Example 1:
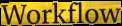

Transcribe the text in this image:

Workflow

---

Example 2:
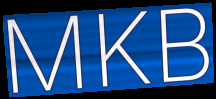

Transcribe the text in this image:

MKB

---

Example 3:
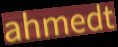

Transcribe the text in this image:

ahmedt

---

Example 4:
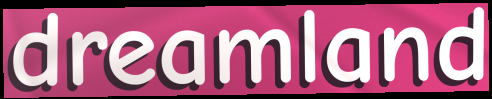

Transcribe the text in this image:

dreamland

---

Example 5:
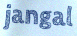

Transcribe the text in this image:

jangal